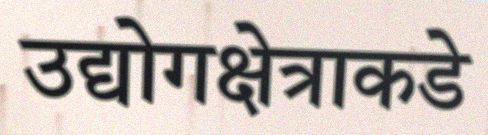
उद्योगक्षेत्राकडे